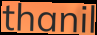
thanil